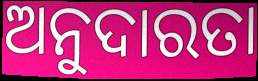
ଅନୁଦାରତା